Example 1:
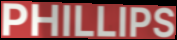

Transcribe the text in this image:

PHILLIPS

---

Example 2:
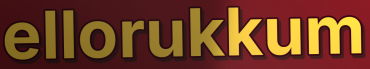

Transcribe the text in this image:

ellorukkum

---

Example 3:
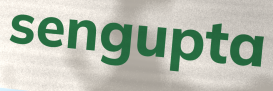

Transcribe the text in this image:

sengupta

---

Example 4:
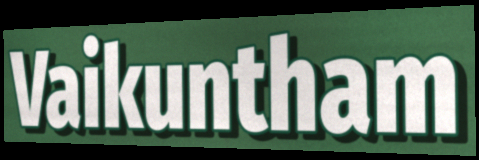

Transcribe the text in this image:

Vaikuntham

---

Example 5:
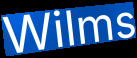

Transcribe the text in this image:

Wilms